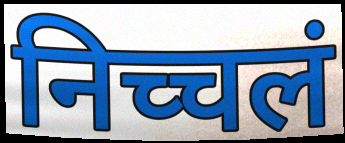
निच्चलं